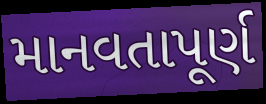
માનવતાપૂર્ણ